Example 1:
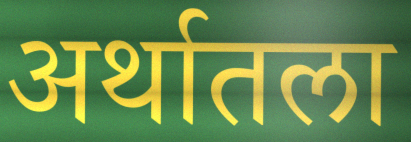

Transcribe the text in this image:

अर्थातला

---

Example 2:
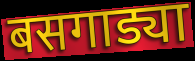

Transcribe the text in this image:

बसगाड्या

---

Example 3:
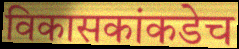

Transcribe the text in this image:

विकासकांकडेच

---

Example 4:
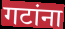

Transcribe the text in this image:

गटांना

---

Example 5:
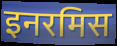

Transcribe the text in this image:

इनरमिस